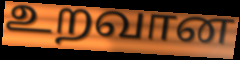
உறவான